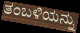
ತಂಬಳಿಯನ್ನು